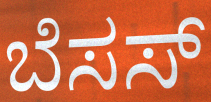
ಬೆಸಸ್